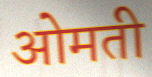
ओमती